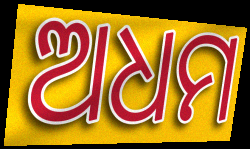
ଅଧମ